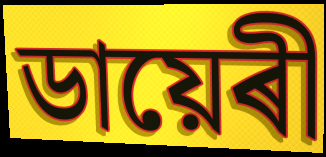
ডায়েৰী